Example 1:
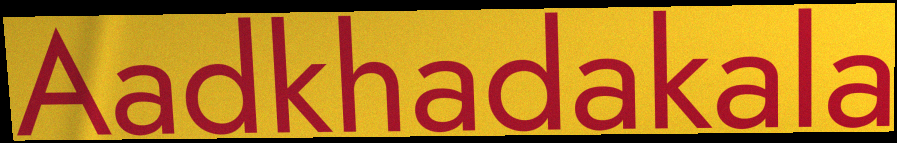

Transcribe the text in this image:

Aadkhadakala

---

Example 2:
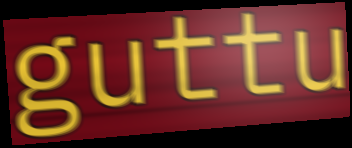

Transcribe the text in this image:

guttu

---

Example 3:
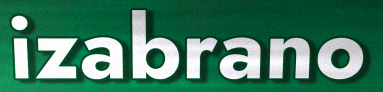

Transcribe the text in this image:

izabrano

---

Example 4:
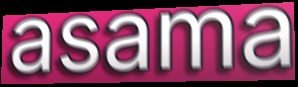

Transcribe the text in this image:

asama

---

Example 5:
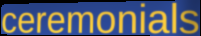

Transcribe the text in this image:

ceremonials